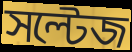
সল্টেজ